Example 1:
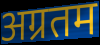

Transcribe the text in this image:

अग्रतम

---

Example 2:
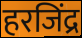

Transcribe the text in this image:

हरजिंद्र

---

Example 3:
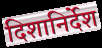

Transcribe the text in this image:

दिशानिर्देश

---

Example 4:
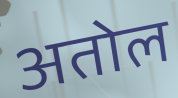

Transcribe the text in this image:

अतोल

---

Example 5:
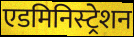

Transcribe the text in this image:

एडमिनिस्‍ट्रेशन